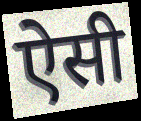
ऐसी